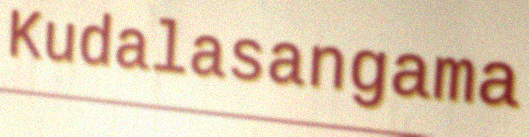
Kudalasangama